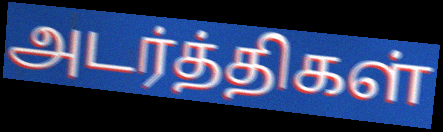
அடர்த்திகள்